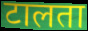
टालता